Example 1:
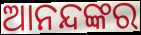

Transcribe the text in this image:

ଆନନ୍ଦଙ୍କର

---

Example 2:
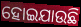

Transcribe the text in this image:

ହୋଇଯାଉଛି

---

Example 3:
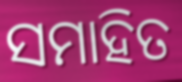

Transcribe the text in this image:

ସମାହିତ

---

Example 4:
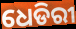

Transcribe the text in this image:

ଧେଡିରୀ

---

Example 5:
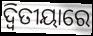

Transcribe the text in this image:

ଦ୍ଵିତୀୟାରେ